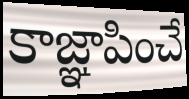
కాజ్ఞాపించే